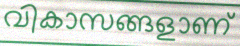
വികാസങ്ങളാണ്